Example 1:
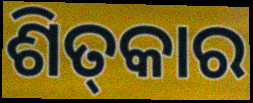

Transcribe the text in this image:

ଶିତ୍‍କାର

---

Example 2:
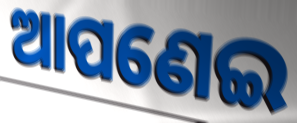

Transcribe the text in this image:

ଆପଣେଇ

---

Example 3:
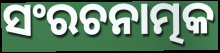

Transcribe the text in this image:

ସଂରଚନାତ୍ମକ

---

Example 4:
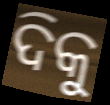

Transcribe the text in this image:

ଦିକୁ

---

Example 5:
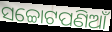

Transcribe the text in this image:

ସଚ୍ଚୋଟପଣିଆଁ